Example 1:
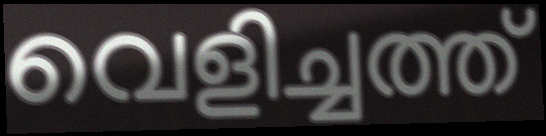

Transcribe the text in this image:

വെളിച്ചത്ത്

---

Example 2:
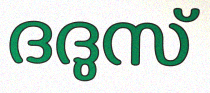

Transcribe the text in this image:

ദദുസ്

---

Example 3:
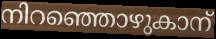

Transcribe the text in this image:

നിറഞ്ഞൊഴുകാന്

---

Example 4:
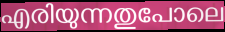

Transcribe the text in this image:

എരിയുന്നതുപോലെ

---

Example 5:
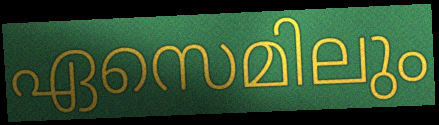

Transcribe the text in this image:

ഏസെമിലും